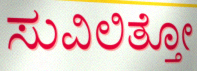
ಸುವಿಲಿತ್ತೋ